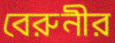
বেরুনীর